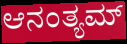
ಆನಂತ್ಯಮ್